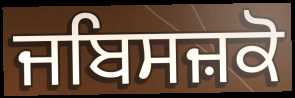
ਜਬਿਸਜ਼ਕੋ